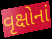
વૃક્ષોનાં